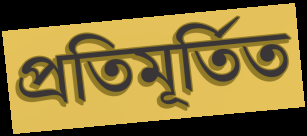
প্ৰতিমূৰ্তিত